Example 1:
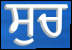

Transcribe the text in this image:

ਸੁਚ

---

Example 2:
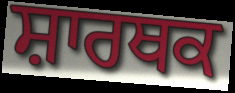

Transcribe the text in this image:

ਸ਼ਾਰਥਕ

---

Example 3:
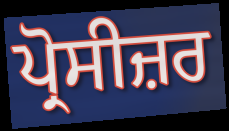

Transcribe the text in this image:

ਪ੍ਰੋਸੀਜ਼ਰ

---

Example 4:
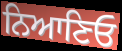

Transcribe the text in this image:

ਨਿਆਣਿਓ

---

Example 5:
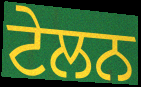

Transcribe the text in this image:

ਟੇਲਨ